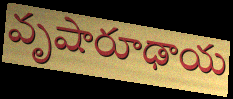
వృషారూఢాయ